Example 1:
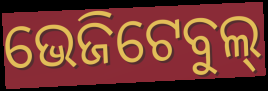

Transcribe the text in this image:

ଭେଜିଟେବୁଲ୍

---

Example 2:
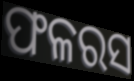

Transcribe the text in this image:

ଫଳରସ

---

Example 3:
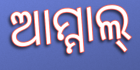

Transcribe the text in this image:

ଆମ୍ମାଲ୍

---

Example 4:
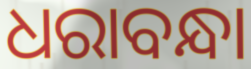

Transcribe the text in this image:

ଧରାବନ୍ଧା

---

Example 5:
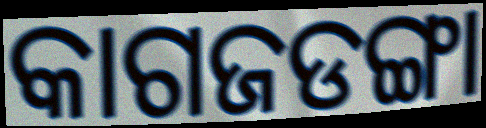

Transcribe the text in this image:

କାଗଜଡଙ୍ଗା